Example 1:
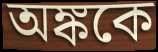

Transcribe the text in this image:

অঙ্ককে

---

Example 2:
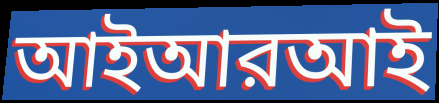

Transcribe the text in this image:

আইআরআই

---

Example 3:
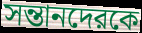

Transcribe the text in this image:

সন্তানদেরকে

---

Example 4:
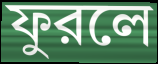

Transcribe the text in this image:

ফুরলে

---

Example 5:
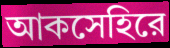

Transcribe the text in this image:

আকসেহিরে